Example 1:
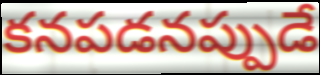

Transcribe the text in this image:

కనపడనప్పుడే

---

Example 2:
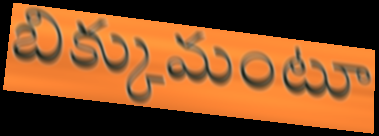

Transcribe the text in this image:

బిక్కుమంటూ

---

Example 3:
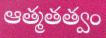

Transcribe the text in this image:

ఆత్మతత్వం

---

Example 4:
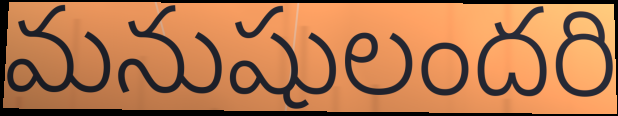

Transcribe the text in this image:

మనుషులందరి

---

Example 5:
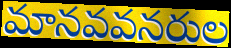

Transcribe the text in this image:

మానవవనరుల